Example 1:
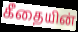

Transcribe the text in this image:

கீதையின்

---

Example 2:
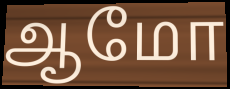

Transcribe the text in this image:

ஆமோ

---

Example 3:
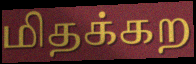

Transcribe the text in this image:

மிதக்கற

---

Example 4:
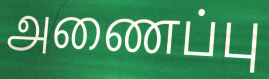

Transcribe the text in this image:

அணைப்பு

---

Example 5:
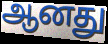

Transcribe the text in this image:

ஆனது